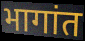
भागांत